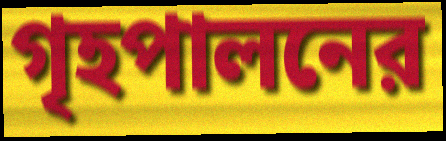
গৃহপালনের